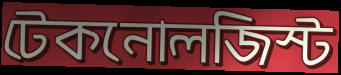
টেকনোলজিস্ট